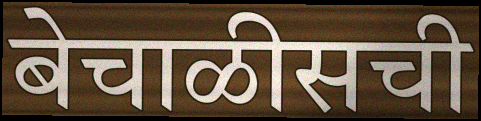
बेचाळीसची